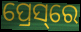
ପ୍ରେସ୍‌ରେ